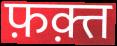
फ़क़्त